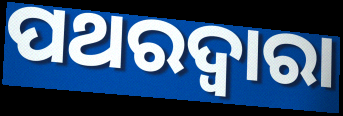
ପଥରଦ୍ୱାରା